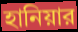
হানিয়ার